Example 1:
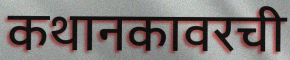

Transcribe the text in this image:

कथानकावरची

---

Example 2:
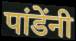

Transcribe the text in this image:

पांडेंनी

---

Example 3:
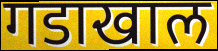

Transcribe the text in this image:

गडाखाल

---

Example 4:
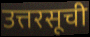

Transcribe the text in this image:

उत्तरसूची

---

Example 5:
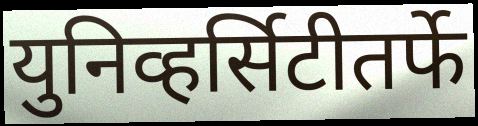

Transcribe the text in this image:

युनिव्हर्सिटीतर्फे